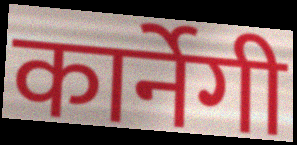
कार्नेगी